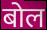
बोल